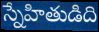
స్నేహితుడిది